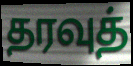
தரவுத்